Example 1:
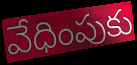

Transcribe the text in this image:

వేధింపుకు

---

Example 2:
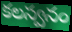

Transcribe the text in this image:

కలస్వనం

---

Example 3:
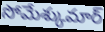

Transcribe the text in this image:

సోమేశ్కుమార్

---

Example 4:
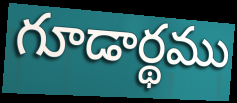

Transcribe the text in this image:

గూడార్థము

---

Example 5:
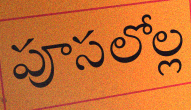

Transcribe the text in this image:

పూసలోల్ల